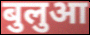
बुलुआ